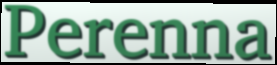
Perenna